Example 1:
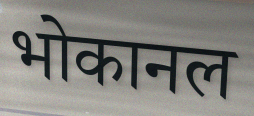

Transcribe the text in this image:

भोकानल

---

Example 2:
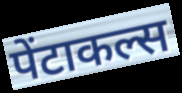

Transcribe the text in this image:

पेंटाकल्स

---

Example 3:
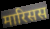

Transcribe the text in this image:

मारिसस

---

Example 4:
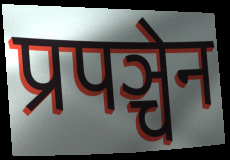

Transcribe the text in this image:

प्रपञ्चेन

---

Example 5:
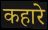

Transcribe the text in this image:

कहारे